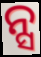
ନ୍ସ